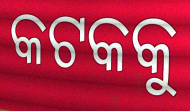
କଟକକୁ